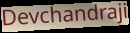
Devchandraji